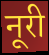
नूरी